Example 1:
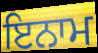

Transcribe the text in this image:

ਇਨਾਮ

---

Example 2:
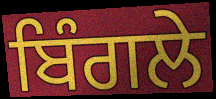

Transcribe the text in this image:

ਬਿੰਗਲੇ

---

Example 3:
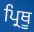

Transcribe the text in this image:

ਪ੍ਰਿਥੂ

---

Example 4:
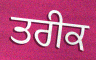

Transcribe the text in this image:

ਤਰੀਕ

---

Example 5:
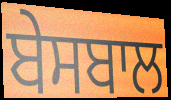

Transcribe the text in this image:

ਬੇਸਬਾਲ